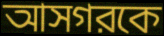
আসগরকে